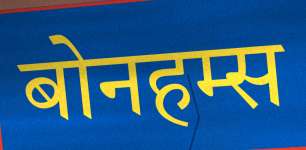
बोनहम्स